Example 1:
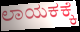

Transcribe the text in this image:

ಲಾಯಕಕ್ಕೆ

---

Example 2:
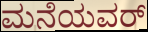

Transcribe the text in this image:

ಮನೆಯವರ್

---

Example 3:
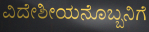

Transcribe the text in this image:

ವಿದೇಶೀಯನೊಬ್ಬನಿಗೆ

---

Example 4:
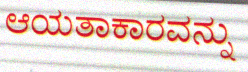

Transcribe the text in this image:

ಆಯತಾಕಾರವನ್ನು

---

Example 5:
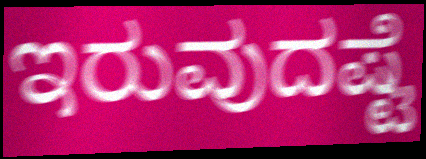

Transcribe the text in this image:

ಇರುವುದಷ್ಟೆ